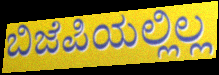
ಬಿಜೆಪಿಯಲ್ಲಿಲ್ಲ